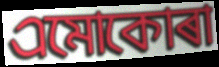
এমোকোৰা